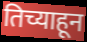
तिच्याहून